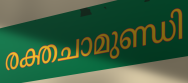
രക്തചാമുണ്ഡി